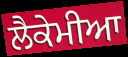
ਲੈਕੇਮੀਆ